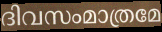
ദിവസംമാത്രമേ